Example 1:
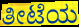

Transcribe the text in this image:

ತೀಟೆಯ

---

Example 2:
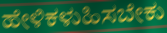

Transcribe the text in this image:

ಹೇಳಿಕಳುಹಿಸಬೇಕು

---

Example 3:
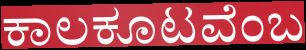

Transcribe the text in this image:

ಕಾಲಕೂಟವೆಂಬ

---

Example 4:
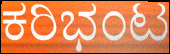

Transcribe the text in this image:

ಕರಿಭಂಟ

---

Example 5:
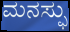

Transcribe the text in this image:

ಮನಸ್ಫು